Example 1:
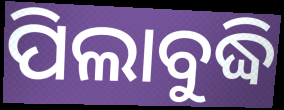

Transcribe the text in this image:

ପିଲାବୁଦ୍ଧି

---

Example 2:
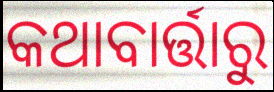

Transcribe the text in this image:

କଥାବାର୍ତ୍ତାରୁ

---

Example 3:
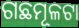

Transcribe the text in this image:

ଗଛମୂଳଟା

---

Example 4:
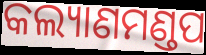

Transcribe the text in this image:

କଲ୍ୟାଣମଣ୍ଡପ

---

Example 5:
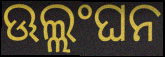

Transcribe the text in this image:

ଊଲ୍ଲଂଘନ